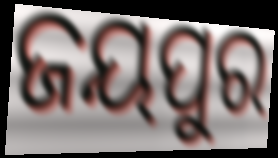
ଜୟପୁର